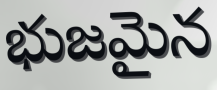
భుజమైన